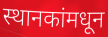
स्थानकांमधून